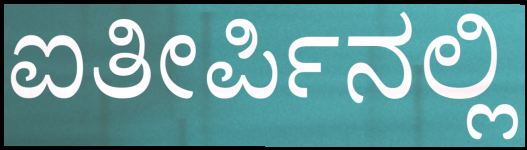
ಐತೀರ್ಪಿನಲ್ಲಿ